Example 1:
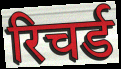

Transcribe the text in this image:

रिचर्ड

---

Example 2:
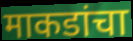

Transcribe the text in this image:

माकडांचा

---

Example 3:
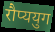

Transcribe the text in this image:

रौप्ययुग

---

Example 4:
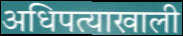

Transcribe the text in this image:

अधिपत्‍याखाली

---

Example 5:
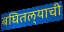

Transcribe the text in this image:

बघितल्याची